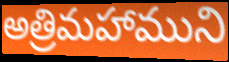
అత్రిమహాముని